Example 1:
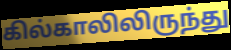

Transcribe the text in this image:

கில்காலிலிருந்து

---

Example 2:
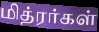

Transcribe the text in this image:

மித்ரர்கள்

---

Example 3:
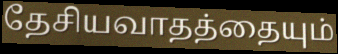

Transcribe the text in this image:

தேசியவாதத்தையும்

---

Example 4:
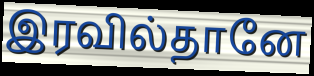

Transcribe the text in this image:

இரவில்தானே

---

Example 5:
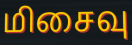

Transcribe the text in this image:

மிசைவு